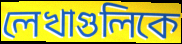
লেখাগুলিকে